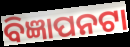
ବିଜ୍ଞାପନଟା